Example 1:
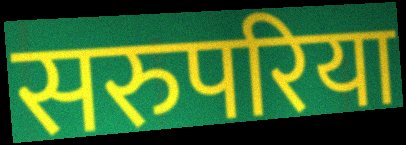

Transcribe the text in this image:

सरुपरिया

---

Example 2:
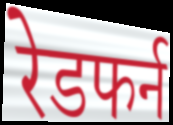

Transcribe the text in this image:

रेडफर्न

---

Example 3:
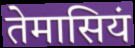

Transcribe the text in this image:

तेमासियं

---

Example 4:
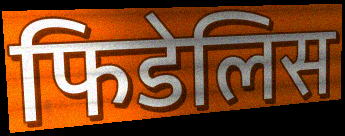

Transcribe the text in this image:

फिडेलिस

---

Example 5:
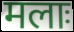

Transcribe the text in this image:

मलाः